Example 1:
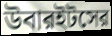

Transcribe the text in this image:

উবারইটসের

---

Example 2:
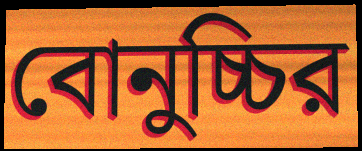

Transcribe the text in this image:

বোনুচ্চির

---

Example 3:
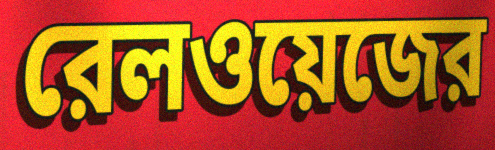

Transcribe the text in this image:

রেলওয়েজের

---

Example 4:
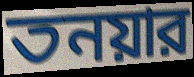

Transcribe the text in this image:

তনয়ার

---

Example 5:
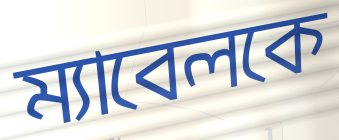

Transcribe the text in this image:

ম্যাবেলকে